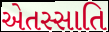
એતસ્સાતિ